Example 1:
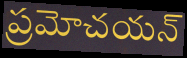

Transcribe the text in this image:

ప్రమోచయన్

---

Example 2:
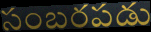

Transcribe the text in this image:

సంబరపడు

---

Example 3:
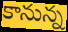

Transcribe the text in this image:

కానున్న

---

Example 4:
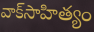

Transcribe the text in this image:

వాక్‌సాహిత్యం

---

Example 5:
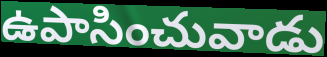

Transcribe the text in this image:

ఉపాసించువాడు